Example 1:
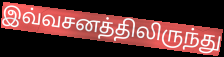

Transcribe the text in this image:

இவ்வசனத்திலிருந்து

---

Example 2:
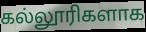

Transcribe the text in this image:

கல்லூரிகளாக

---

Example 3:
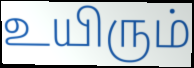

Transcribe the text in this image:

உயிரும்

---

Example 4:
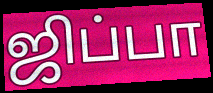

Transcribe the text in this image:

ஜிப்பா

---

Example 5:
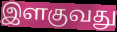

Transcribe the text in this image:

இளகுவது